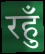
रहुँ